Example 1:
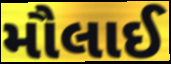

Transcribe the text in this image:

મૌલાઈ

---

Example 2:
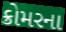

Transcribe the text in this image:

ક્રોમરના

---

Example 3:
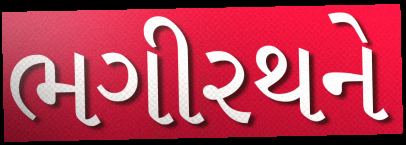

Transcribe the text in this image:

ભગીરથને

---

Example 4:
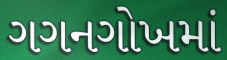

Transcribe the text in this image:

ગગનગોખમાં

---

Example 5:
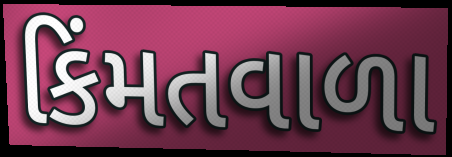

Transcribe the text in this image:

કિંમતવાળા